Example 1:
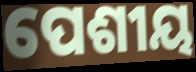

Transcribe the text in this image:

ପେଶୀୟ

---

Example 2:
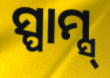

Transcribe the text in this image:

ସ୍ପାମ୍ସ୍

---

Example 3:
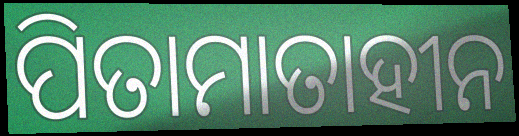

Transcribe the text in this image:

ପିତାମାତାହୀନ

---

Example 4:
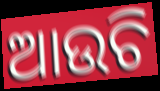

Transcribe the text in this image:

ଆଉଚି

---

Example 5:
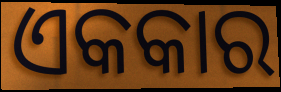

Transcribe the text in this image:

ଏକକାର